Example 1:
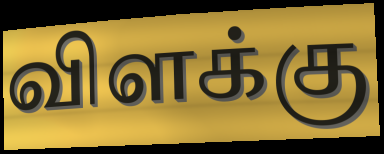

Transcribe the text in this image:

விளக்கு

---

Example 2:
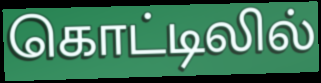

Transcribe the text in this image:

கொட்டிலில்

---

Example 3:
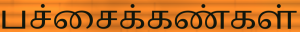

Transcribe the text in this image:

பச்சைக்கண்கள்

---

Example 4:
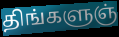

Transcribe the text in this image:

திங்களுஞ்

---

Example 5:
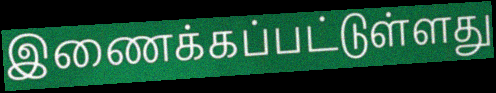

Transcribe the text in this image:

இணைக்கப்பட்டுள்ளது